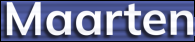
Maarten